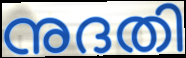
നുദതി